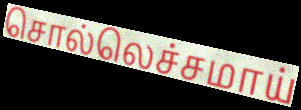
சொல்லெச்சமாய்